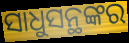
ସାଧୁସନ୍ଥଙ୍କର